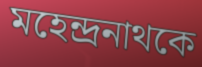
মহেন্দ্রনাথকে